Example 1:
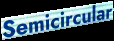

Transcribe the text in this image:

Semicircular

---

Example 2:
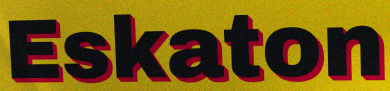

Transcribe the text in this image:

Eskaton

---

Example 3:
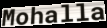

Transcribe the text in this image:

Mohalla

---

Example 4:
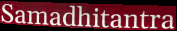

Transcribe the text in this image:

Samadhitantra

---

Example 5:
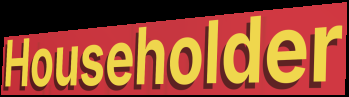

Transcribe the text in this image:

Householder